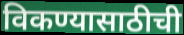
विकण्यासाठीची